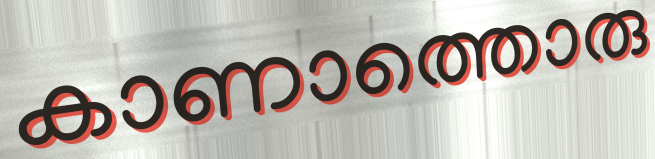
കാണാത്തൊരു